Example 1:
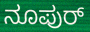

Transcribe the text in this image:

ನೂಪುರ್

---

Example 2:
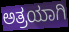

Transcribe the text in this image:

ಅತ್ರಯಾಗಿ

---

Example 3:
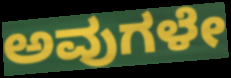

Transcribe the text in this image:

ಅವುಗಳೇ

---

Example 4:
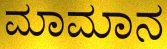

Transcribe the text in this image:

ಮಾಮಾನ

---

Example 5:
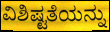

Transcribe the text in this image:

ವಿಶಿಷ್ಟತೆಯನ್ನು